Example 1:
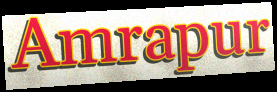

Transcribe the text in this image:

Amrapur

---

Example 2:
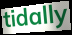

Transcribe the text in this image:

tidally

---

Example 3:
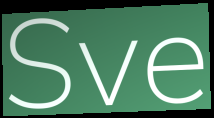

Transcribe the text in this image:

Sve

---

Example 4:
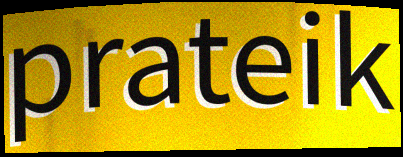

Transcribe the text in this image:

prateik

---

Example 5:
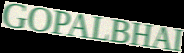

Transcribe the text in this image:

GOPALBHAI